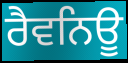
ਰੈਵਨਿਊ